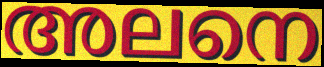
അലനെ